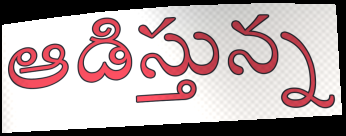
ఆడిస్తున్న